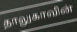
தாலுகாவின்